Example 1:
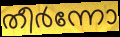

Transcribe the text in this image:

തീർന്നോ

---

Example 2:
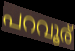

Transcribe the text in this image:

പറവൂര്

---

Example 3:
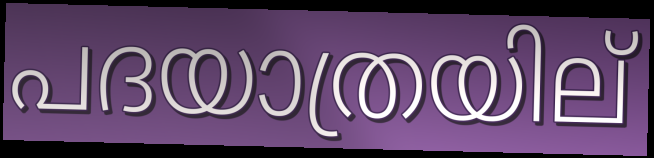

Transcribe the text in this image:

പദയാത്രയില്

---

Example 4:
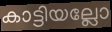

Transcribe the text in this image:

കാട്ടിയല്ലോ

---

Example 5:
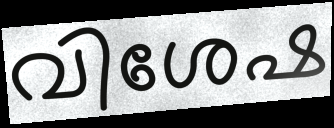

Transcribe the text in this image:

വിശേഷ